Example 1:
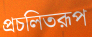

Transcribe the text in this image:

প্রচলিতরূপ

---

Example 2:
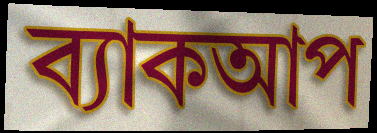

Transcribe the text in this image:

ব্যাকআপ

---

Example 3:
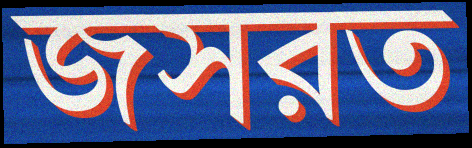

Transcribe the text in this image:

জসরত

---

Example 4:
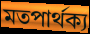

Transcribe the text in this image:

মতপার্থক্য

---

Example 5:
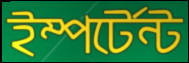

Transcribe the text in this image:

ইম্পর্টেন্ট